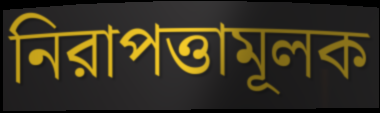
নিরাপত্তামূলক